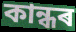
কান্ধৰ